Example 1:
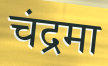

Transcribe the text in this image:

चंद्रमा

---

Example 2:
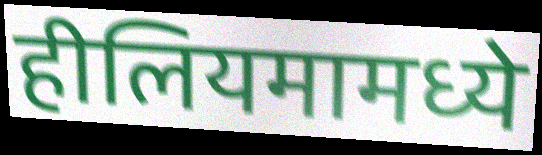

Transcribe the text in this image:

हीलियमामध्ये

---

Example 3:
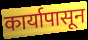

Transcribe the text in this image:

कार्यापासून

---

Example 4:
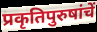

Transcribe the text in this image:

प्रकृतिपुरुषांचें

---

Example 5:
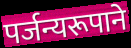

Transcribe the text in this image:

पर्जन्यरूपाने